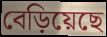
বেড়িয়েছে